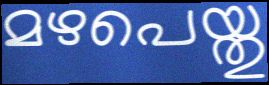
മഴപെയ്തു